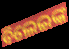
ବିଲେଇଙ୍କ